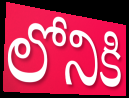
లోనికి